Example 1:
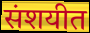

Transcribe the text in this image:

संशयीत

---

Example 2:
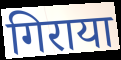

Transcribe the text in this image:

गिराया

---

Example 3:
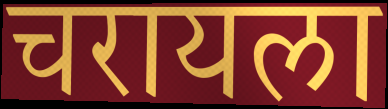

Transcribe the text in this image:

चरायला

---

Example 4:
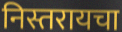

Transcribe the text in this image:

निस्तरायचा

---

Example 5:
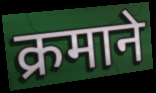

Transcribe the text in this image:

क्रमाने